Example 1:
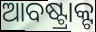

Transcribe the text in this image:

ଆବଷ୍ଟ୍ରାକ୍ଟ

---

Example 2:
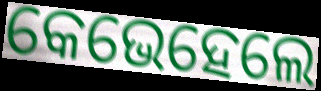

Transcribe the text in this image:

କେଭେହେଲେ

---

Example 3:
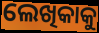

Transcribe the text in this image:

ଲେଖିକାକୁ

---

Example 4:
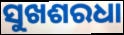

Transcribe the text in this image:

ସୁଖଶରଧା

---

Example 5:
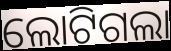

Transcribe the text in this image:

ଲୋଟିଗଲା